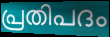
പ്രതിപദം